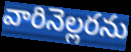
వారినెల్లరను